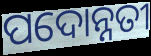
ପଦୋନ୍ନତୀ